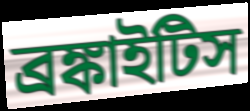
ব্রঙ্কাইটিস